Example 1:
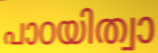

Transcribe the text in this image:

പാഠയിത്വാ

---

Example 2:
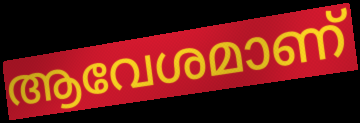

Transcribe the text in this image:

ആവേശമാണ്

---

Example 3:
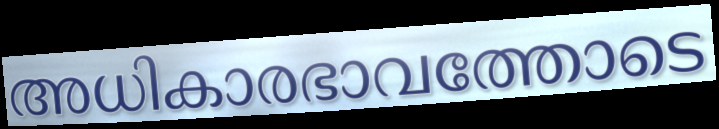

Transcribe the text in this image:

അധികാരഭാവത്തോടെ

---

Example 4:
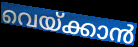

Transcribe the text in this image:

വെയ്ക്കാൻ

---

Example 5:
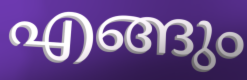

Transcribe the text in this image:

എങ്ങും